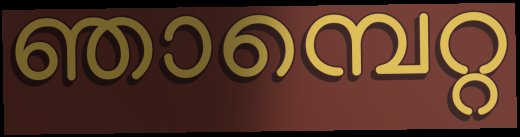
ഞാമ്പെറ്റ